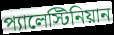
প্যালেস্টিনিয়ান